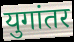
युगांतर